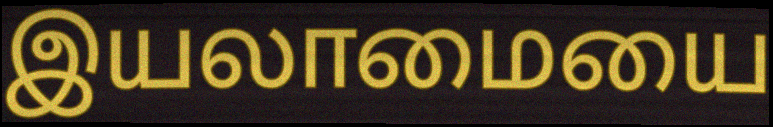
இயலாமையை